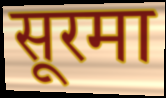
सूरमा